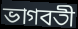
ভাগবতী